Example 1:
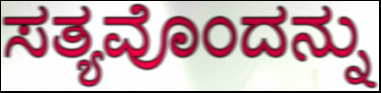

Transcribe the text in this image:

ಸತ್ಯವೊಂದನ್ನು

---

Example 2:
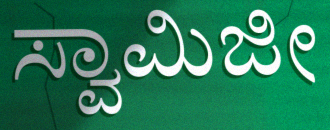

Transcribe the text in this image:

ಸ್ವಾಮಿಜೀ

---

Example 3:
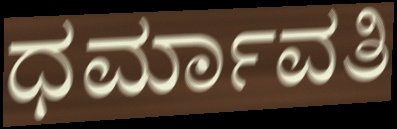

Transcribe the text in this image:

ಧರ್ಮಾವತಿ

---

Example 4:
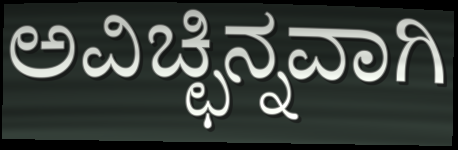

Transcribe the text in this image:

ಅವಿಚ್ಛಿನ್ನವಾಗಿ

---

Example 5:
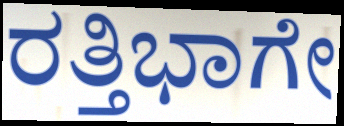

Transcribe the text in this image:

ರತ್ತಿಭಾಗೇ